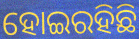
ହୋଇରହିଛି